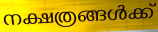
നക്ഷത്രങ്ങൾക്ക്